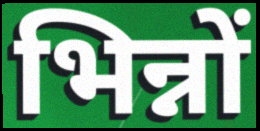
भिन्नों